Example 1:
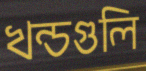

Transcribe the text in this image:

খন্ডগুলি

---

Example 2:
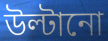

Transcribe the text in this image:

উল্টানো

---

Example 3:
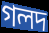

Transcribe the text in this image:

গলদ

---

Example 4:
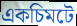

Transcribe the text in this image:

একচিমটে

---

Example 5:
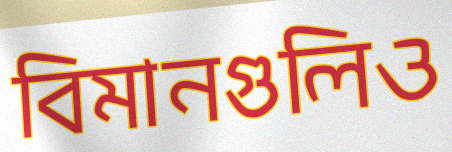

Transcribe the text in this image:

বিমানগুলিও